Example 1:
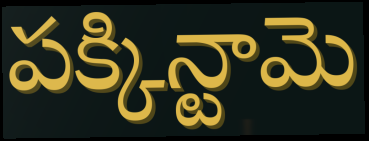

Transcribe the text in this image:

పక్కిన్టామె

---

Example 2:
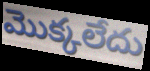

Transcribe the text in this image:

మొక్కలేదు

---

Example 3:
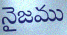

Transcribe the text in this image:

నైజము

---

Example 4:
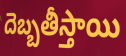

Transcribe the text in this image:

దెబ్బతీస్తాయి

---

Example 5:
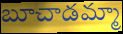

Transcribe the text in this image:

బూచాడమ్మా